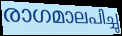
രാഗമാലപിച്ചു